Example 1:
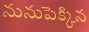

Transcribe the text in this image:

నునుపెక్కిన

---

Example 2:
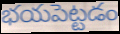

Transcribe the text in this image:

భయపెట్టడం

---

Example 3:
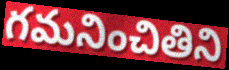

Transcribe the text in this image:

గమనించితిని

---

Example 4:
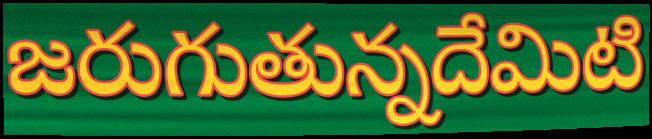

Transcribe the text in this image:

జరుగుతున్నదేమిటి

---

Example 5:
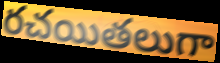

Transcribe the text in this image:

రచయితలుగా